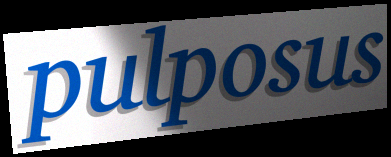
pulposus